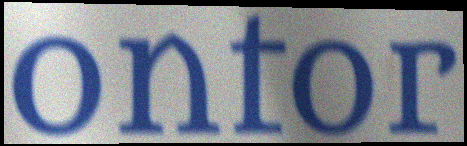
ontor